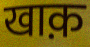
खाक़